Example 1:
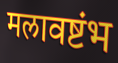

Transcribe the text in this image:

मलावष्टंभ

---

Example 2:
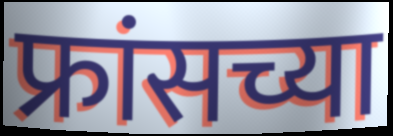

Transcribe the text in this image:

फ्रांसच्या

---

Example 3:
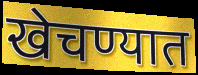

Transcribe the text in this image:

खेचण्यात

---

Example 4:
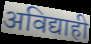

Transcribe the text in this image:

अविद्याही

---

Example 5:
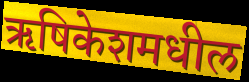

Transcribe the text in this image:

ऋषिकेशमधील